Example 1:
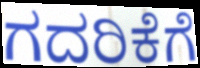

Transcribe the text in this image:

ಗದರಿಕೆಗೆ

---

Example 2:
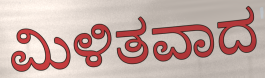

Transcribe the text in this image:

ಮಿಳಿತವಾದ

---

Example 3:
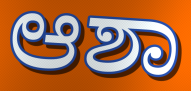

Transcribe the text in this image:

ಆಶಾ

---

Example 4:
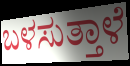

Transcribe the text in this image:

ಬಳಸುತ್ತಾಳೆ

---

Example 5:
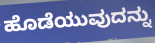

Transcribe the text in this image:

ಹೊಡೆಯುವುದನ್ನು